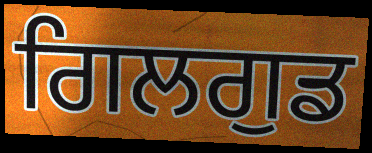
ਗਿਲਗੁਡ